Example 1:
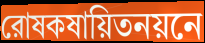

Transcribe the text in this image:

রোষকষায়িতনয়নে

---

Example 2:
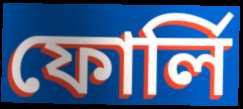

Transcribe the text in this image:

ফোর্লি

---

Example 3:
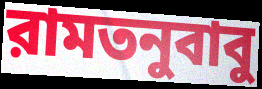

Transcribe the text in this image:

রামতনুবাবু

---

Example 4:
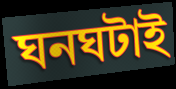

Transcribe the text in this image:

ঘনঘটাই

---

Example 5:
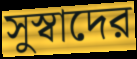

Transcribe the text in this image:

সুস্বাদের